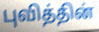
புவித்தின்